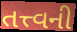
તત્ત્વની